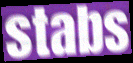
stabs